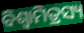
ବିଶ୍ଵାମିତ୍ରସ୍ୟ